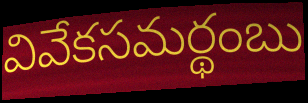
వివేకసమర్థంబు